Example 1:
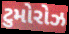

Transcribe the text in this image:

ટુમોરોઝ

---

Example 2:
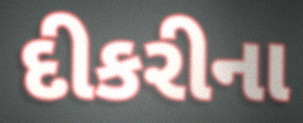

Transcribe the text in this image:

દીકરીના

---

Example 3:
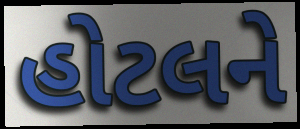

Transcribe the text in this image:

હોટલને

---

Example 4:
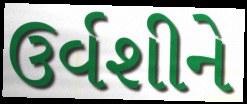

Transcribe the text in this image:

ઉર્વશીને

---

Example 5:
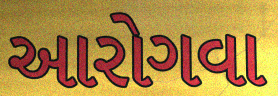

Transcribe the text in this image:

આરોગવા